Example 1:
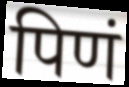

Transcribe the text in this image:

पिणं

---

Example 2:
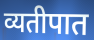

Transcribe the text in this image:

व्यतीपात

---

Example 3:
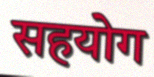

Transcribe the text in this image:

सहयोग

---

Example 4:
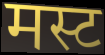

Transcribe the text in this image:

मस्ट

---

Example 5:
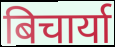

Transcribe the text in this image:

बिचार्या